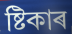
ষ্টিকাৰ